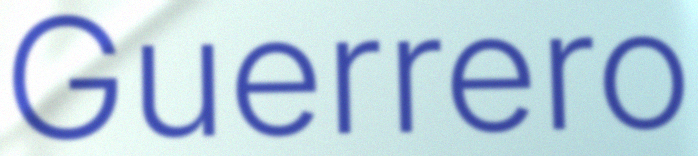
Guerrero